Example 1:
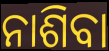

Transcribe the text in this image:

ନାଶିବା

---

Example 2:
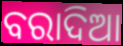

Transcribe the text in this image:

ବରାଦିଆ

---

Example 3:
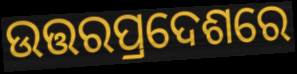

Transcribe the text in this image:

ଉତ୍ତରପ୍ରଦେଶରେ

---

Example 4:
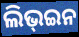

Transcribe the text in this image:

ଲିଭ୍ଇନ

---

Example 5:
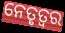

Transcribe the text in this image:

ନେତୃତ୍ଵର